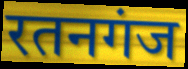
रतनगंज